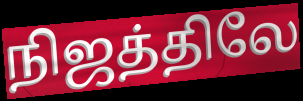
நிஜத்திலே